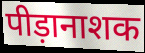
पीड़ानाशक